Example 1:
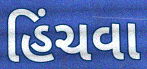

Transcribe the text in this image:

હિંચવા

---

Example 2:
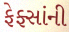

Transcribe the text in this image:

ફેફ્સાંની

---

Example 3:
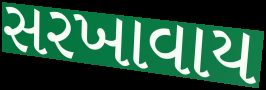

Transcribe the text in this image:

સરખાવાય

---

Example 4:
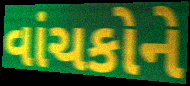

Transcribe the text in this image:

વાંચકોને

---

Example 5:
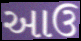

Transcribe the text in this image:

આઉ